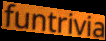
funtrivia